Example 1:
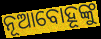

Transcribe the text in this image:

ନୂଆବୋହୂଙ୍କୁ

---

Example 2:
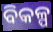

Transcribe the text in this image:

ବିକଳ୍ପ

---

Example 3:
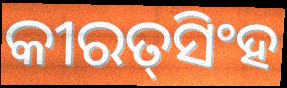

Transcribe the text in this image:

କୀରତ୍‍ସିଂହ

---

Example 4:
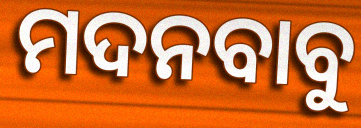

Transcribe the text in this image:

ମଦନବାବୁ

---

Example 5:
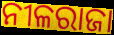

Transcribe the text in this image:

ନୀଳରାଜା